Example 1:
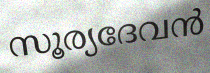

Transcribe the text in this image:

സൂര്യദേവൻ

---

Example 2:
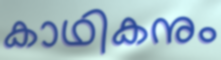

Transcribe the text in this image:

കാഥികനും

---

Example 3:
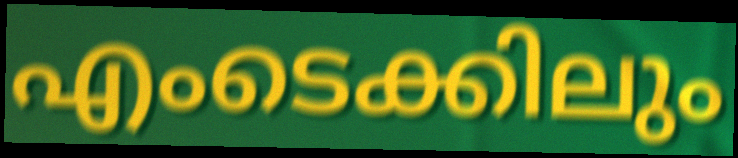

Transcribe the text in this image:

എംടെക്കിലും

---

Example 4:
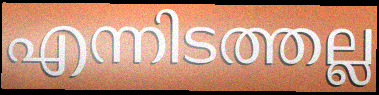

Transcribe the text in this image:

എന്നിടത്തല്ല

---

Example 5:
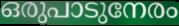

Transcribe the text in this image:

ഒരുപാടുനേരം